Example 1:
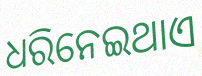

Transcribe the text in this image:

ଧରିନେଇଥାଏ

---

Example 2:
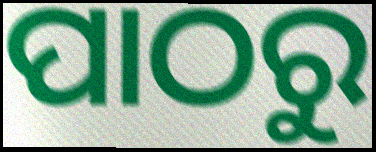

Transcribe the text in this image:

ପାଠରୁ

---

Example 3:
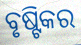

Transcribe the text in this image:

ବୃଷ୍ଟିକର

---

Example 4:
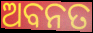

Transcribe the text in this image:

ଅବନତ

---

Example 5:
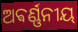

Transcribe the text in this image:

ଅଵର୍ଣ୍ଣନୀୟ